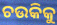
ଚଉକିକୁ